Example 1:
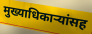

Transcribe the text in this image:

मुख्याधिकाऱ्यांसह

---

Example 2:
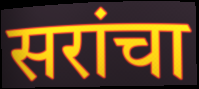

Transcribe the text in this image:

सरांचा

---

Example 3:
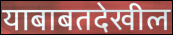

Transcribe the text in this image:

याबाबतदेखील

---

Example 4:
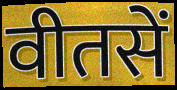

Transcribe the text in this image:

वीतसें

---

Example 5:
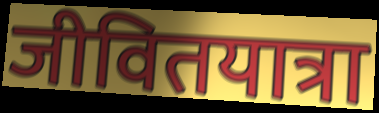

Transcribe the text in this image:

जीवितयात्रा